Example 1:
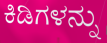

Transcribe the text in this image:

ಕಿಡಿಗಳನ್ನು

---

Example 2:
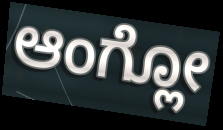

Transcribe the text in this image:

ಆಂಗ್ಲೋ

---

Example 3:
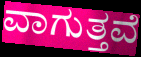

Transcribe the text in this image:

ವಾಗುತ್ತವೆ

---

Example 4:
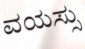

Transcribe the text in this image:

ವಯಸ್ಸು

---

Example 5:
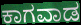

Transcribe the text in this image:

ಕಾಗವಾಡ